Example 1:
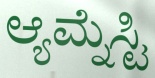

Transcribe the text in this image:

ಆ್ಯಮ್ನೆಸ್ಟಿ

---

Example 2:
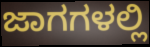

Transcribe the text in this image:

ಜಾಗಗಳಲ್ಲಿ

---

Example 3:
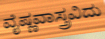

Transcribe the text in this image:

ವೈಷ್ಣವಾಸ್ತ್ರವಿದು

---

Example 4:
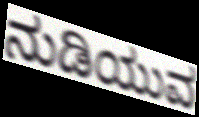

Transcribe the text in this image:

ನುಡಿಯುವ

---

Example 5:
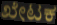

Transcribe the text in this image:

ಖೇಟಕ